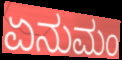
ಏನುಮಂ